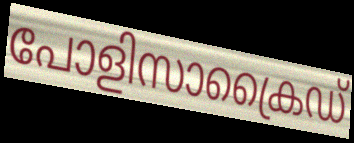
പോളിസാക്രൈഡ്